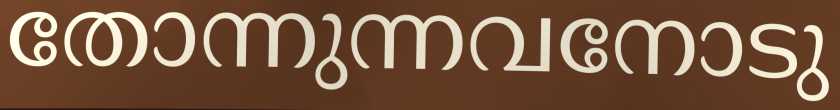
തോന്നുന്നവനോടു